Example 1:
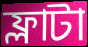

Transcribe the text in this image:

ফ্লাটা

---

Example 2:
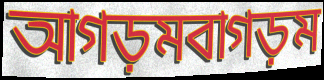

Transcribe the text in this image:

আগড়মবাগড়ম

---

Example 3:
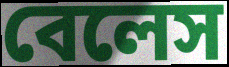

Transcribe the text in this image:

বেলেস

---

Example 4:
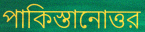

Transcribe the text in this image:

পাকিস্তানোত্তর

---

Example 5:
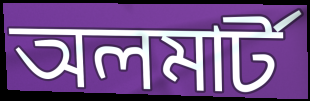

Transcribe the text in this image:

অলমার্ট